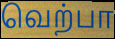
வெற்பா